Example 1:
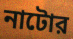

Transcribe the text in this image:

নাটোর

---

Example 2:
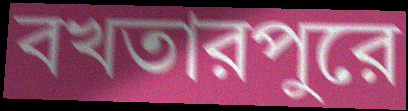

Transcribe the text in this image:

বখতারপুরে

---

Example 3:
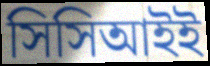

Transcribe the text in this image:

সিসিআইই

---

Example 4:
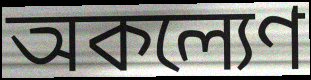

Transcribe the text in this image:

অকল্যেণ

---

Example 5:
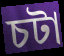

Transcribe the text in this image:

চটা